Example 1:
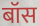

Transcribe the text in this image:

बॉस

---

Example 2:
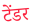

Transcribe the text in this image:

टेंडर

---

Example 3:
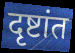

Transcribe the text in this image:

दृष्टांत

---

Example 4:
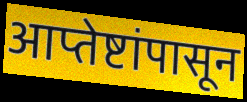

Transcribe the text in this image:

आप्तेष्टांपासून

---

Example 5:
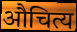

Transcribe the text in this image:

औचित्य